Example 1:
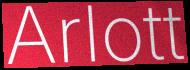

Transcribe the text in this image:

Arlott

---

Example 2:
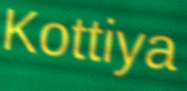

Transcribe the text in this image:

Kottiya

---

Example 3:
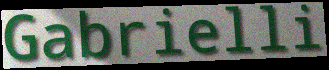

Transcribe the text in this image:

Gabrielli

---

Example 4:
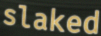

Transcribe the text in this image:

slaked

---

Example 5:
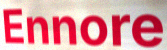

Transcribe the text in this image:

Ennore